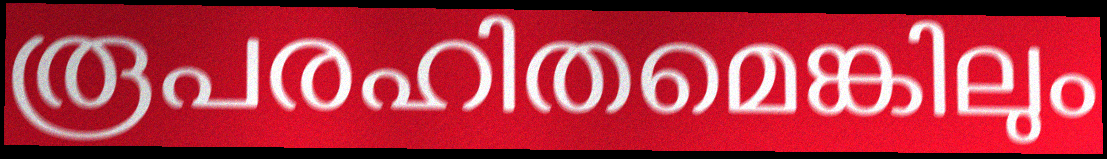
രൂപരഹിതമെങ്കിലും